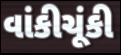
વાંકીચૂંકી